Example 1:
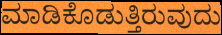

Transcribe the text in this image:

ಮಾಡಿಕೊಡುತ್ತಿರುವುದು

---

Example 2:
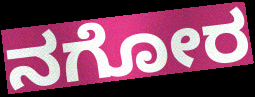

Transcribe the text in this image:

ನಗೋರ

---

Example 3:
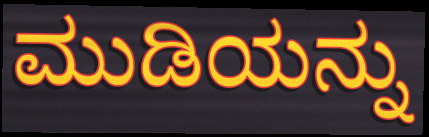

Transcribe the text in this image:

ಮುಡಿಯನ್ನು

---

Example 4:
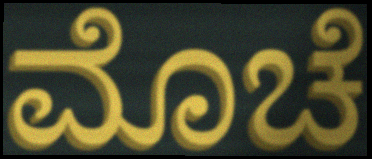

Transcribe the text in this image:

ಮೊಚೆ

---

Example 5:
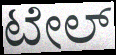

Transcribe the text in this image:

ಟೇಲ್